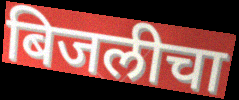
बिजलीचा